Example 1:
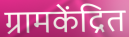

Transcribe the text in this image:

ग्रामकेंद्रित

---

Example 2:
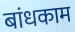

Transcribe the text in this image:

बांधकाम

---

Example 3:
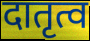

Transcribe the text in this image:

दातृत्व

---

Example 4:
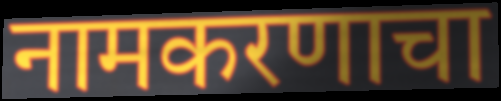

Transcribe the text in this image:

नामकरणाचा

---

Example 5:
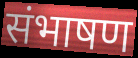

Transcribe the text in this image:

संभाषण